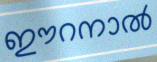
ഈറനാൽ